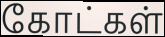
கோட்கள்